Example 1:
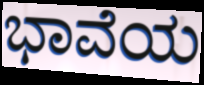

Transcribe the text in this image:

ಭಾವೆಯ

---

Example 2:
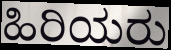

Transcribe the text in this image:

ಹಿರಿಯರು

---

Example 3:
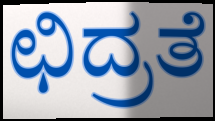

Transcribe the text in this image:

ಛಿದ್ರತೆ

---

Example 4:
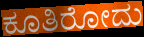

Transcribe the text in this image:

ಕೂತಿರೋದು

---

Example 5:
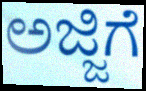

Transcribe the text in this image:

ಅಜ್ಜಿಗೆ